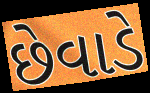
છેવાડે